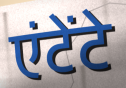
एंटेंटे